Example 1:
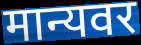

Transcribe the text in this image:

मान्यवर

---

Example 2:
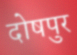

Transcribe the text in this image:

दोषपुर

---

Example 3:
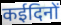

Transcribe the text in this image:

कईदिनों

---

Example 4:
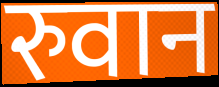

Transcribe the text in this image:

रुवान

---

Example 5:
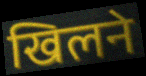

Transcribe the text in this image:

खिलने